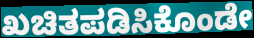
ಖಚಿತಪಡಿಸಿಕೊಂಡೇ